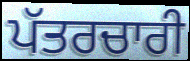
ਪੱਤਰਚਾਰੀ